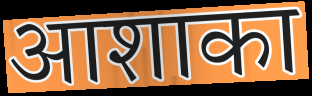
आशाका